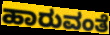
ಹಾರುವಂತೆ